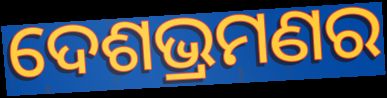
ଦେଶଭ୍ରମଣର